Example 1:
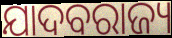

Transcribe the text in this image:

ଯାଦବରାଜ୍ୟ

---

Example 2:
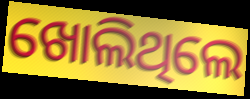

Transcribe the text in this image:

ଖୋଲିଥିଲେ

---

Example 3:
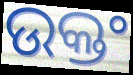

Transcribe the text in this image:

ଉକ୍ତଂ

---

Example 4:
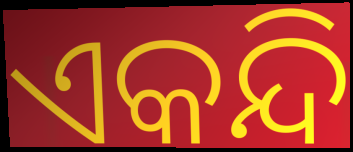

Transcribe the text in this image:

ଏକନ୍ଦି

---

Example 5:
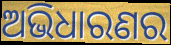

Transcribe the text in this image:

ଅଭିଧାରଣର